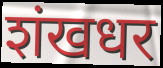
शंखधर